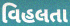
વિહલતા